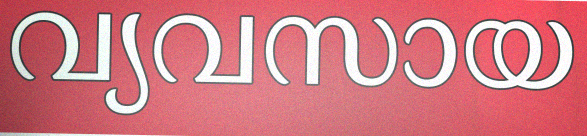
വ്യവസായ